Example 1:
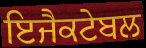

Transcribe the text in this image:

ਇਜੈਕਟੇਬਲ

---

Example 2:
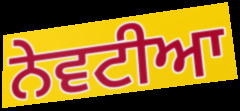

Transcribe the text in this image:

ਨੇਵਟੀਆ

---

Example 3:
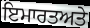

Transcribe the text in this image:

ਇਮਾਰਤਅਤੇ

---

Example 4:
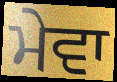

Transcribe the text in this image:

ਮੇਵਾ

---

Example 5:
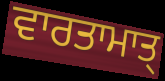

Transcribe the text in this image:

ਵਾਰਤਾਮਾਤ੍